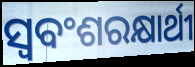
ସ୍ବବଂଶରକ୍ଷାର୍ଥୀ